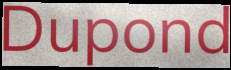
Dupond